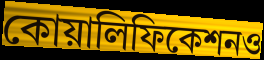
কোয়ালিফিকেশনও